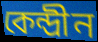
কেন্দ্রীন